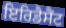
ਇਰਿਡੈਸੈਂਟ